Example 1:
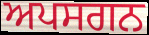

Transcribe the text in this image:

ਅਪਸਗਨ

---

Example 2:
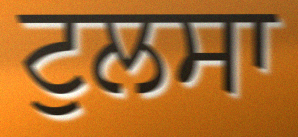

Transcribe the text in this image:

ਟੁਲਸਾ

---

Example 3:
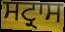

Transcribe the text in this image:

ਸਟ੍ਰਾਸ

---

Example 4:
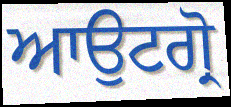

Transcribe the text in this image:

ਆਉਟਗ੍ਰੋ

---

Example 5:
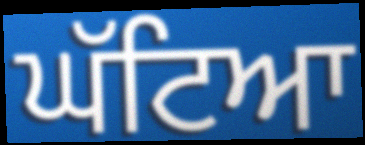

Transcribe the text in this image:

ਘੱਟਿਆ